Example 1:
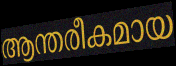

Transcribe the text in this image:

ആന്തരീകമായ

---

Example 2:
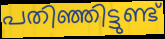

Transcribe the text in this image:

പതിഞ്ഞിട്ടുണ്ട്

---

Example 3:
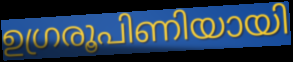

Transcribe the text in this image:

ഉഗ്രരൂപിണിയായി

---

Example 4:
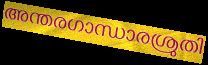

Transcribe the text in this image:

അന്തരഗാന്ധാരശ്രുതി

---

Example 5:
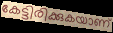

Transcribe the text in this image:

കേട്ടിരിക്കുകയാണ്